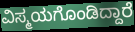
ವಿಸ್ಮಯಗೊಂಡಿದ್ದಾರೆ